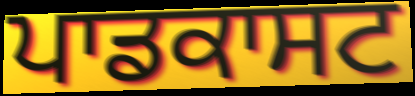
ਪਾਡਕਾਸਟ